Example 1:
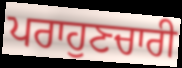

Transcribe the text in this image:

ਪਰਾਹੁਣਚਾਰੀ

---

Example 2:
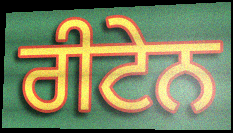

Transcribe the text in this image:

ਰੀਟੇਨ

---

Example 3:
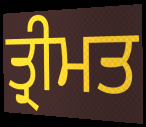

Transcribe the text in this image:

ਤ੍ਰੀਮਤ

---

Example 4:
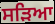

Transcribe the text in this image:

ਸੜਿਆ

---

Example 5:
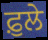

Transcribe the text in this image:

ਫ਼ੁਲੇ